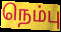
நெம்பு